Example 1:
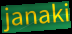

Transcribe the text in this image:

janaki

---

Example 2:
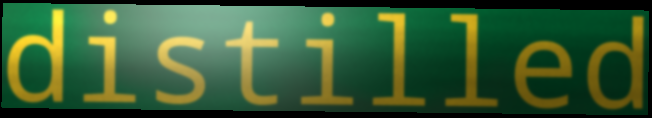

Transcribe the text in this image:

distilled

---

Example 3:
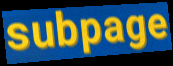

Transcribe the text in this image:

subpage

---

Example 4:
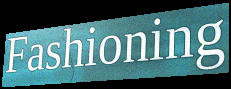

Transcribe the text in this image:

Fashioning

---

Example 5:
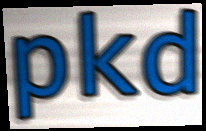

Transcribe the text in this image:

pkd